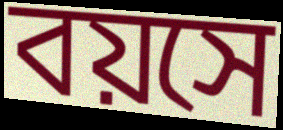
বয়সে